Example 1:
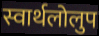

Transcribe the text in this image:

स्वार्थलोलुप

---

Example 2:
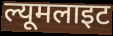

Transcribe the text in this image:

ल्यूमलाइट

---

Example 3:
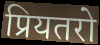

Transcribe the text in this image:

प्रियतरो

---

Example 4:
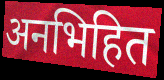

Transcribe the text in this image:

अनभिहित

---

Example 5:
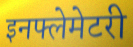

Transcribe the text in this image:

इनफ्लेमेटरी